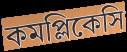
কমপ্লিকেসি